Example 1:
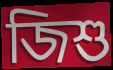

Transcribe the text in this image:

জিশু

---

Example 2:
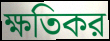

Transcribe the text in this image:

ক্ষতিকর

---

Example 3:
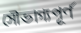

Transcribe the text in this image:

সৌভাগ্যপূর্ণ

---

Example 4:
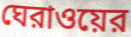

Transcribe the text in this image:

ঘেরাওয়ের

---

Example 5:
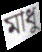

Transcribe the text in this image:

মাধু